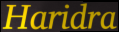
Haridra